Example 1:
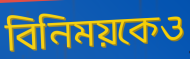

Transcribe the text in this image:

বিনিময়কেও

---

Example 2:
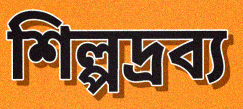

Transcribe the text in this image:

শিল্পদ্রব্য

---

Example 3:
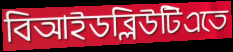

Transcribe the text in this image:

বিআইডব্লিউটিএতে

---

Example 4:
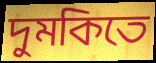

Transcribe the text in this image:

দুমকিতে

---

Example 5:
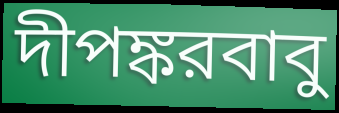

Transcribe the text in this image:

দীপঙ্করবাবু